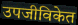
उपजीविकेत